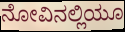
ನೋವಿನಲ್ಲಿಯೂ